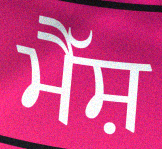
ਮੈੱਸ਼